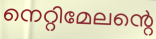
നെറ്റിമേലന്റെ